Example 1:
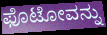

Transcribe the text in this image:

ಫೊಟೋವನ್ನು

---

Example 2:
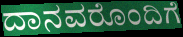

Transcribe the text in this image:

ದಾನವರೊಂದಿಗೆ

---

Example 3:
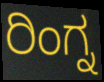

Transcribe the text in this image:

ರಿಂಗ್ನ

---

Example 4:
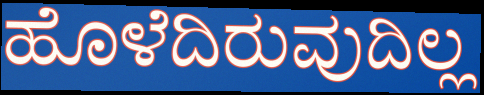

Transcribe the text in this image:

ಹೊಳೆದಿರುವುದಿಲ್ಲ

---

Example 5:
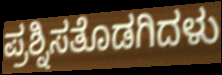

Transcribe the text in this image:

ಪ್ರಶ್ನಿಸತೊಡಗಿದಳು